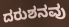
ದರುಶನವು